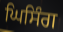
ਘਿਸਿੰਗ